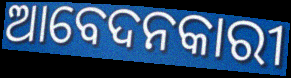
ଆବେଦନକାରୀ